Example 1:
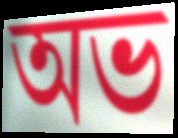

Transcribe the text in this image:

অভ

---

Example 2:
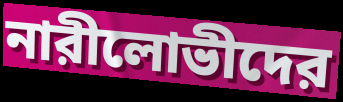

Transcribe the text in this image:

নারীলোভীদের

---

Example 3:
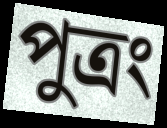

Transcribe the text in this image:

পুত্রং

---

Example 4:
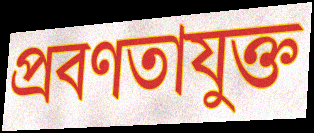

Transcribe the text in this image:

প্রবণতাযুক্ত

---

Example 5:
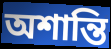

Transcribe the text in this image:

অশান্তি